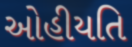
ઓહીયતિ